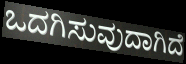
ಒದಗಿಸುವುದಾಗಿದೆ